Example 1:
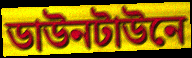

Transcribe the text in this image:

ডাউনটাউনে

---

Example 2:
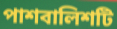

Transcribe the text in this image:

পাশবালিশটি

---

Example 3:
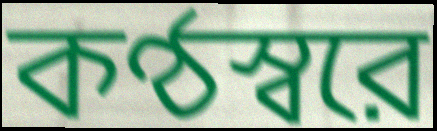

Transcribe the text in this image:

কণ্ঠস্বরে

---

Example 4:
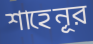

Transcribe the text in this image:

শাহেনূর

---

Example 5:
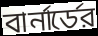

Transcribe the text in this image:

বার্নার্ডের